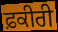
ਫ਼ਕੀਰੀ